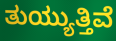
ತುಯ್ಯುತ್ತಿವೆ